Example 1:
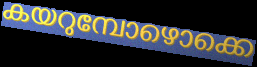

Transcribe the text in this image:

കയറുമ്പോഴൊക്കെ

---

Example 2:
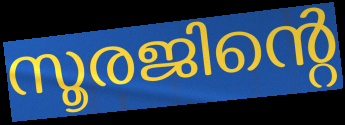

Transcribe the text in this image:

സൂരജിന്റെ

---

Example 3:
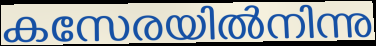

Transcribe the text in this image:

കസേരയിൽനിന്നു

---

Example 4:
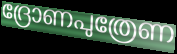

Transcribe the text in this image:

ദ്രോണപുത്രേണ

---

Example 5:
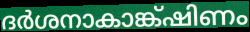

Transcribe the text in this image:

ദർശനാകാങ്ക്ഷിണം